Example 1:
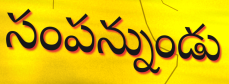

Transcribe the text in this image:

సంపన్నుండు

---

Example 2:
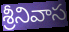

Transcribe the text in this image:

శ్రీనివాస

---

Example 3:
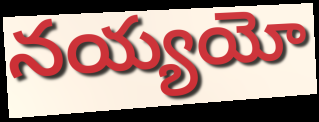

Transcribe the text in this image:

నయ్యయో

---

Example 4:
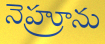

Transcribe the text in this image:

నెహ్రూను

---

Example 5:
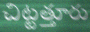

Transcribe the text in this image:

చిట్టత్తూరు